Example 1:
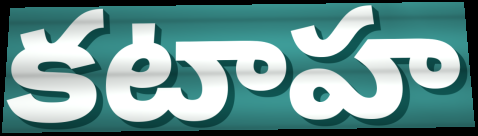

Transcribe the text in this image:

కటాహ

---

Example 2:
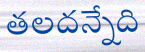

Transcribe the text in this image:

తలదన్నేది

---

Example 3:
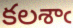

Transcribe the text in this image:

కలశాఁ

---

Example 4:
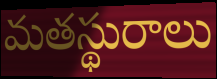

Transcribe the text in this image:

మతస్థురాలు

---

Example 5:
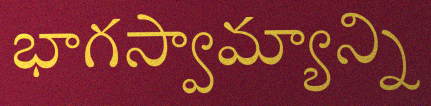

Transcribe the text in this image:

భాగస్వామ్యాన్ని